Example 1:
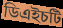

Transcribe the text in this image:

ডিএইচটি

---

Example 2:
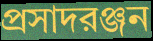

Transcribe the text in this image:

প্রসাদরঞ্জন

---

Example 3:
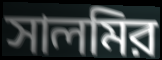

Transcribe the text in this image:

সালমির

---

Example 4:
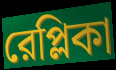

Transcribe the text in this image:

রেপ্লিকা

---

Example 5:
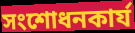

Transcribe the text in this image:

সংশোধনকার্য